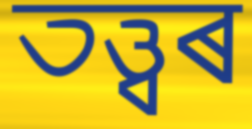
তত্ত্বৰ